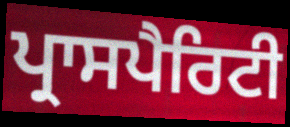
ਪ੍ਰਾਸਪੈਰਿਟੀ